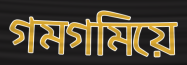
গমগমিয়ে